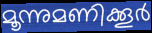
മൂന്നുമണിക്കൂർ